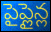
పైప్లైన్ల